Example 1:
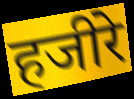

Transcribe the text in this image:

हजीरे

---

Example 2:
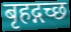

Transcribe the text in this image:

बृहद्गच्छ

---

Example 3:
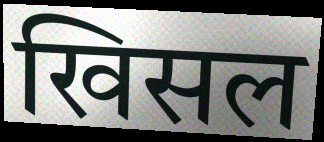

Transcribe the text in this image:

खिसल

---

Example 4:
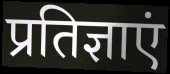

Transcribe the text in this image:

प्रतिज्ञाएं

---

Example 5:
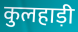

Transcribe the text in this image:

कुलहाड़ी